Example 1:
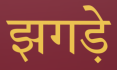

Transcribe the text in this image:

झगड़े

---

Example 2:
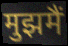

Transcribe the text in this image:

मुझमैं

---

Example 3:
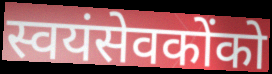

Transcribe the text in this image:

स्वयंसेवकोंको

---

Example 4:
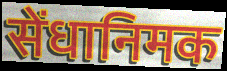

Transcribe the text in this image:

सेंधानिमक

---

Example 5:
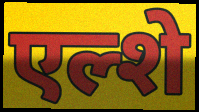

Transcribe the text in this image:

एल्शे